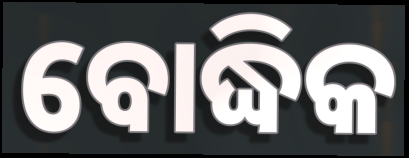
ବୋଦ୍ଧିକ